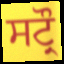
ਸਟ੍ਰੌ